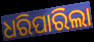
ଧରିପାରିଲା